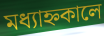
মধ্যাহ্নকালে